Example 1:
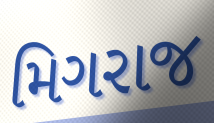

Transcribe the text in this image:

મિગરાજ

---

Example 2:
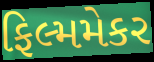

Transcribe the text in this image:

ફિલ્મમેકર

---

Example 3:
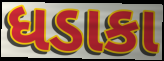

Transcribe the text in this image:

ધડાકા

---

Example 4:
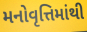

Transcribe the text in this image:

મનોવૃત્તિમાંથી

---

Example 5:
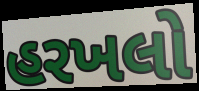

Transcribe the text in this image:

હરખલો